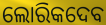
ଲୋରିକଦେବ